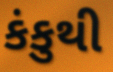
કંકુથી